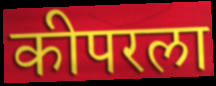
कीपरला